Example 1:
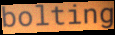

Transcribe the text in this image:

bolting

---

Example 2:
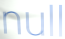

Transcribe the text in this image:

null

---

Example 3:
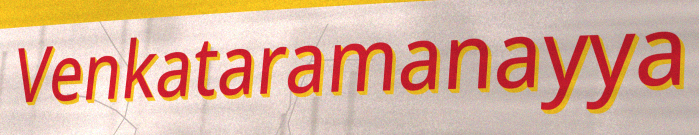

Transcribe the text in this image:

Venkataramanayya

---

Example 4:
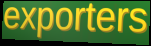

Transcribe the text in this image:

exporters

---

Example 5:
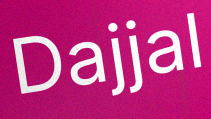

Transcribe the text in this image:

Dajjal